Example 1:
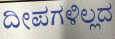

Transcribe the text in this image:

ದೀಪಗಳಿಲ್ಲದ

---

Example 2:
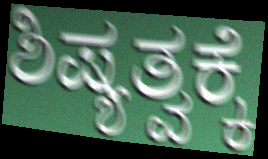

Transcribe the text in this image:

ಶಿಷ್ಯತ್ವಕ್ಕೆ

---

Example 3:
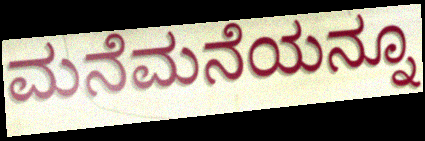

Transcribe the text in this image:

ಮನೆಮನೆಯನ್ನೂ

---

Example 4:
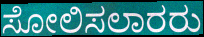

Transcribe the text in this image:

ಸೋಲಿಸಲಾರರು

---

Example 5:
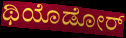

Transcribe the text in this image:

ಥಿಯೊಡೋರ್